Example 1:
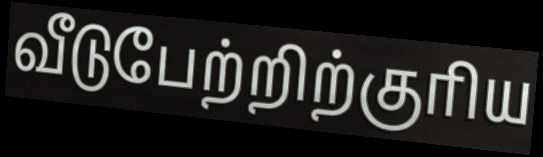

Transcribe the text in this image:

வீடுபேற்றிற்குரிய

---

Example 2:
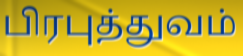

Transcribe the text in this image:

பிரபுத்துவம்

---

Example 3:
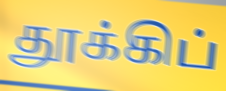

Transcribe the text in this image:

தூக்கிப்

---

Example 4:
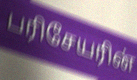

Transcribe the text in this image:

பரிசேயரின்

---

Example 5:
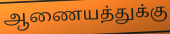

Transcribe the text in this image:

ஆணையத்துக்கு